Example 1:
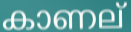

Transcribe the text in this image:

കാണല്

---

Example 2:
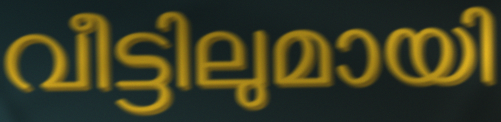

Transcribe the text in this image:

വീട്ടിലുമായി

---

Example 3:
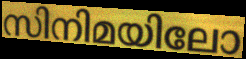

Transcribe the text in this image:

സിനിമയിലോ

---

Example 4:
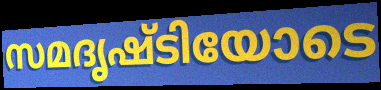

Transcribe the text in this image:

സമദൃഷ്ടിയോടെ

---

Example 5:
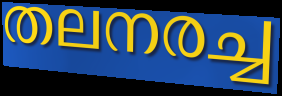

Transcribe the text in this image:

തലനരച്ച